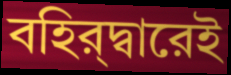
বহির্‌দ্বারেই